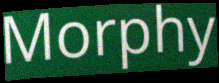
Morphy